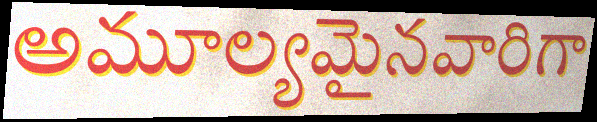
అమూల్యమైనవారిగా